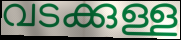
വടക്കുള്ള